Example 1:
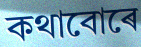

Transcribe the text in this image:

কথাবোৰে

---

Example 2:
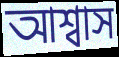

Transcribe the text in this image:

আশ্বাস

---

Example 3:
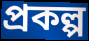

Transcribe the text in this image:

প্ৰকল্প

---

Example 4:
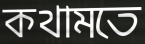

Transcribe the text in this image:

কথামতে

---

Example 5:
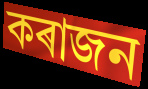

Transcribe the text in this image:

কৰাজন